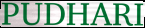
PUDHARI